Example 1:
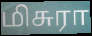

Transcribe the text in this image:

மிசுரா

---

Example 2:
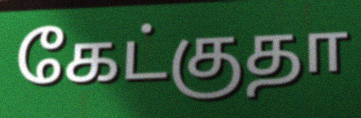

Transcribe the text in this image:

கேட்குதா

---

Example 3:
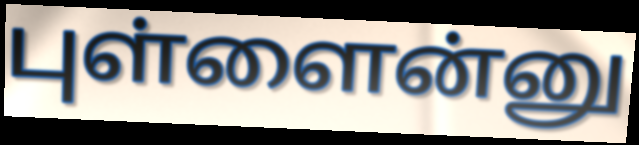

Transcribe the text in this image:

புள்ளைன்னு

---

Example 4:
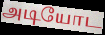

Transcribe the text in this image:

அடியோட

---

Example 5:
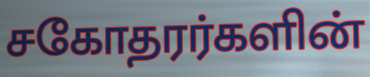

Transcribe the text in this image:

சகோதரர்களின்